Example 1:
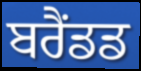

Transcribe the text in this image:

ਬਰੈਂਡਡ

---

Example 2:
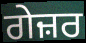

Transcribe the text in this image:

ਗੇਜ਼ਰ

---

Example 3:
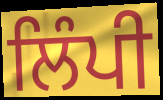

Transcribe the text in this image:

ਲਿੰਪੀ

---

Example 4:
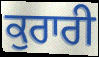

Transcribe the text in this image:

ਕੁਰਾਰੀ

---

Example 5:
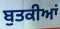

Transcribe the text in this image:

ਬੁਤਕੀਆਂ